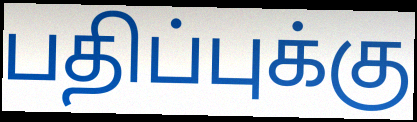
பதிப்புக்கு